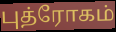
புத்ரோகம்